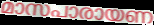
മാസപാരായണ